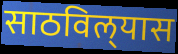
साठविल्यास